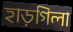
হাড়গিলা